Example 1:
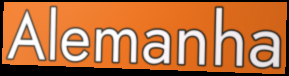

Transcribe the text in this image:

Alemanha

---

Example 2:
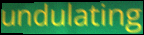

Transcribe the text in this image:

undulating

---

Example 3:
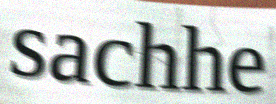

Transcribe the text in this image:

sachhe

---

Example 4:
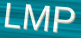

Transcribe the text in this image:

LMP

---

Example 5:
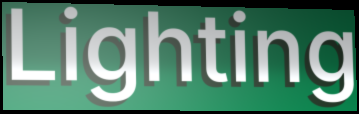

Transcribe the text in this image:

Lighting